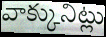
వాక్కునిట్లు